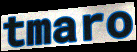
tmaro